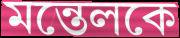
মন্তেলকে